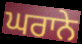
ਘਰਾਨੇ